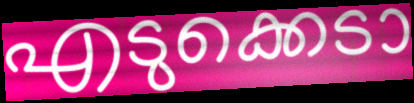
എടുക്കെടാ